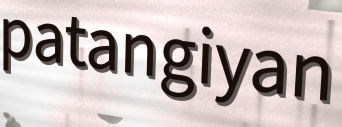
patangiyan